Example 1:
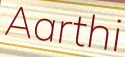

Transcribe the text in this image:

Aarthi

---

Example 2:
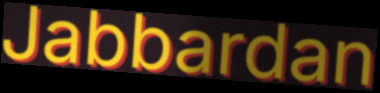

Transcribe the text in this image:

Jabbardan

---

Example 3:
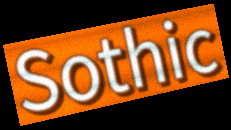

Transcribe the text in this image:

Sothic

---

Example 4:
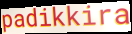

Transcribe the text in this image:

padikkira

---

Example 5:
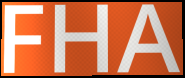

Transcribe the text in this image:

FHA